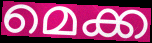
മെക്ക